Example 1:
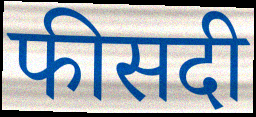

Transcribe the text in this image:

फीसदी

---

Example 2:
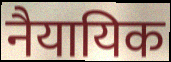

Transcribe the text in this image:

नैयायिक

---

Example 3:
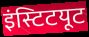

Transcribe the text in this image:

इंस्टिटयूट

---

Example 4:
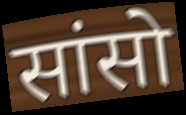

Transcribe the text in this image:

सांसो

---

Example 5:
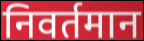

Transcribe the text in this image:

निवर्तमान